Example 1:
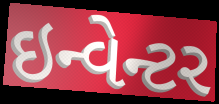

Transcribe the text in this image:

ઇન્વેન્ટર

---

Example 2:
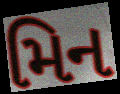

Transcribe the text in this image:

મિન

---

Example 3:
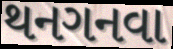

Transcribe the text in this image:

થનગનવા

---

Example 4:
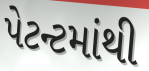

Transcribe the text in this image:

પેટન્ટમાંથી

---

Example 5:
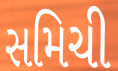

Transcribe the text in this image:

સમિચી